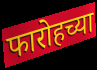
फारोहच्या